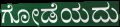
ಗೋಡೆಯದು